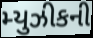
મ્યુઝીકની